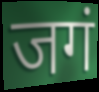
जगं